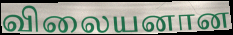
விலையனான